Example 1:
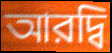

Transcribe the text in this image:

আরদ্বি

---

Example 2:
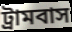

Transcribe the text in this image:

ট্রামবাস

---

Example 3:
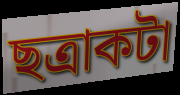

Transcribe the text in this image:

ছত্রাকটা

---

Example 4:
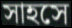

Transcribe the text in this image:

সাহসে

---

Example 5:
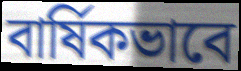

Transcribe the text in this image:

বার্ষিকভাবে